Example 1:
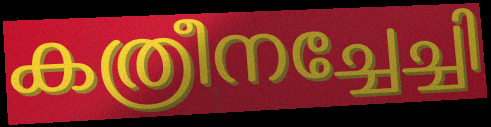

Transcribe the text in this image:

കത്രീനച്ചേച്ചി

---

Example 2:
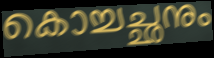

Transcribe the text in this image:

കൊച്ചച്ഛനും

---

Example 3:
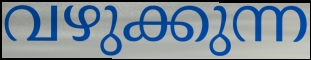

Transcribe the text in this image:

വഴുക്കുന്ന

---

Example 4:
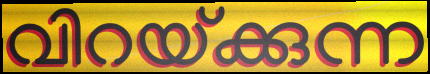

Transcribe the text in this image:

വിറയ്‌ക്കുന്ന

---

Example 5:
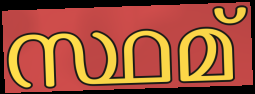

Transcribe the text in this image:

സ്ഥമ്